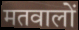
मतवालों